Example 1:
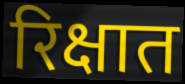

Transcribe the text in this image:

रिक्षात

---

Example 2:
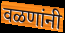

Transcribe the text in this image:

वळणांनी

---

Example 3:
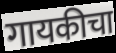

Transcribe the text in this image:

गायकीचा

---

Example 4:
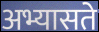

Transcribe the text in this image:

अभ्यासते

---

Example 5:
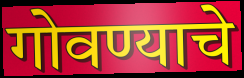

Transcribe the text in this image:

गोवण्याचे